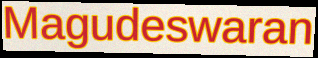
Magudeswaran